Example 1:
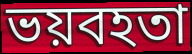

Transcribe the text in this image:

ভয়বহতা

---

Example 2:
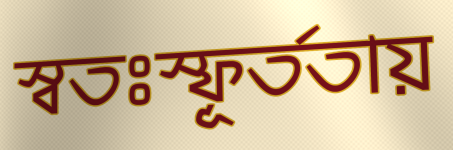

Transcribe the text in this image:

স্বতঃস্ফূর্ততায়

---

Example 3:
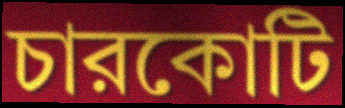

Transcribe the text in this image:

চারকোটি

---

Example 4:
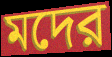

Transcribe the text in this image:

মদের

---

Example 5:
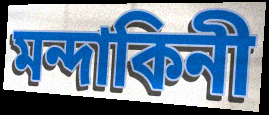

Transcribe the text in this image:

মন্দাকিনী